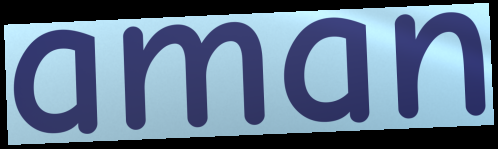
aman